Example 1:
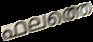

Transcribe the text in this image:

ഫലത്തെ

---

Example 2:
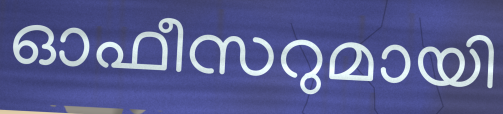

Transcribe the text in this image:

ഓഫീസറുമായി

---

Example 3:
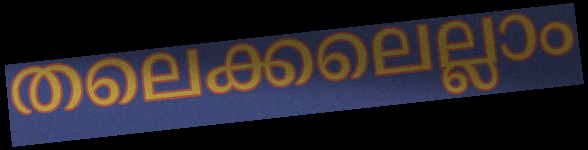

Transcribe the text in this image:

തലെക്കലെല്ലാം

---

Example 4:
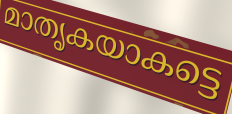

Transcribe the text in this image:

മാതൃകയാകട്ടെ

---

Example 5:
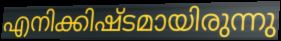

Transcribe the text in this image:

എനിക്കിഷ്ടമായിരുന്നു